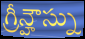
గ్రీన్హౌస్ను